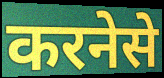
करनेसे